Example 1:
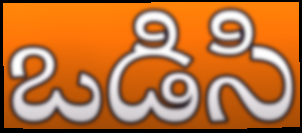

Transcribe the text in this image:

ఒడిసి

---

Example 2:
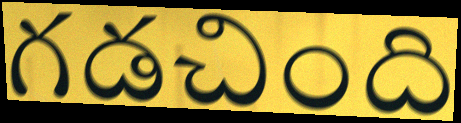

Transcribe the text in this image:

గడచింది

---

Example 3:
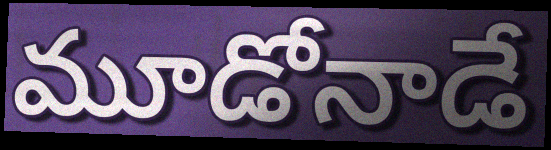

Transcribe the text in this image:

మూడోనాడే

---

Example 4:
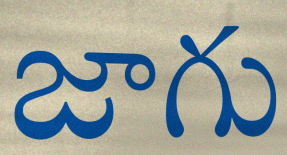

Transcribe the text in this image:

జాగు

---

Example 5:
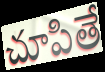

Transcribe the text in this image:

చూపితే